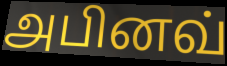
அபினவ்